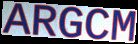
ARGCM